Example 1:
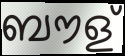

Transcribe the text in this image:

ബൗള്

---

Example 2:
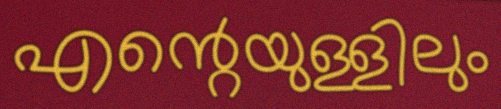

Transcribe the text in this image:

എന്റെയുള്ളിലും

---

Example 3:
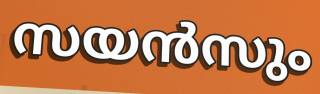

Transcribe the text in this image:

സയൻസും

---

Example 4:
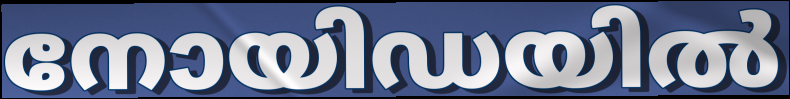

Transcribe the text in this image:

നോയിഡയിൽ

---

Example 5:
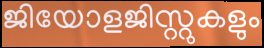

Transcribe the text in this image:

ജിയോളജിസ്റ്റുകളും